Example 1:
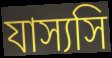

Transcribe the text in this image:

যাস্যসি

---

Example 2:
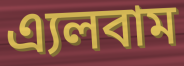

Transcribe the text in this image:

এ্যলবাম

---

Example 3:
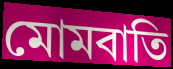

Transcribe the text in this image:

মোমবাতি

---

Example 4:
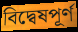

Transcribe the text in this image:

বিদ্বেষপূর্ণ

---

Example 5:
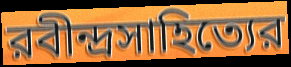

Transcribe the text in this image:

রবীন্দ্রসাহিত্যের